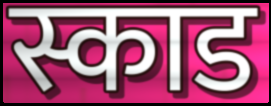
स्काड